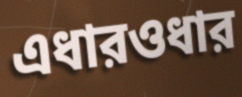
এধারওধার